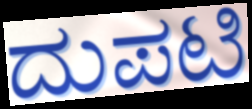
ದುಪಟಿ